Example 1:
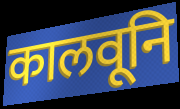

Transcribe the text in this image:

कालवूनि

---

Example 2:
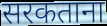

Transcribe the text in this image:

सरकताना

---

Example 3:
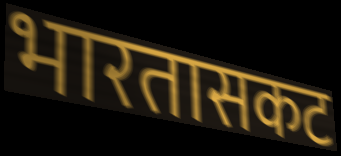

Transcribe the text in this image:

भारतासकट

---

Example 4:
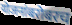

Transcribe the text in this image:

योजनांबरोबरच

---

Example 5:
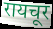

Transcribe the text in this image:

रायचूर